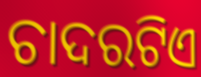
ଚାଦରଟିଏ